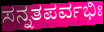
ಸನ್ನತಪರ್ವಭಿಃ